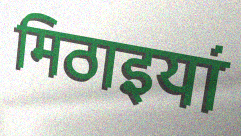
मिठाइयां